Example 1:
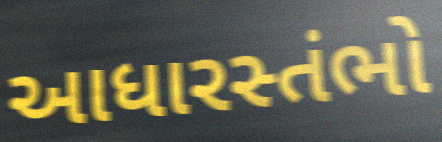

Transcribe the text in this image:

આધારસ્તંભો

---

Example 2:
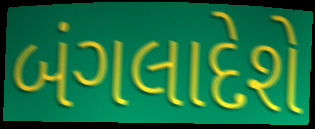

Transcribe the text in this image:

બંગલાદેશે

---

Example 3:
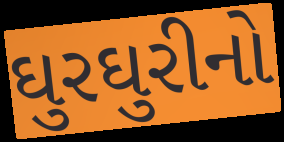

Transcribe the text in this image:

ઘુરઘુરીનો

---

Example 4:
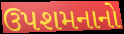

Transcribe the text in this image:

ઉપશમનાનો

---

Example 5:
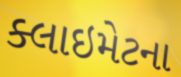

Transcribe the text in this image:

ક્લાઇમેટના